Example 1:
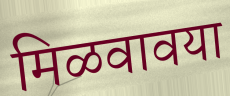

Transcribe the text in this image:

मिळवावया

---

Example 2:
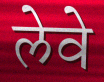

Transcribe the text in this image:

लेवे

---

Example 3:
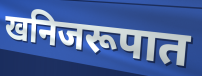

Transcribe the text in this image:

खनिजरूपात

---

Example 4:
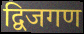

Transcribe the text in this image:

द्विजगण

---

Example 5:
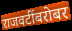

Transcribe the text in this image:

राजवटींबरोबर